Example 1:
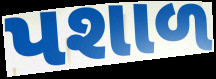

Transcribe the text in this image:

પશાળ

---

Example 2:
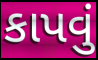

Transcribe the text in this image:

કાપવું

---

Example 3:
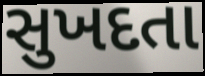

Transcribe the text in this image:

સુખદતા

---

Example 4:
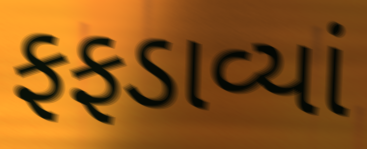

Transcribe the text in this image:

ફફડાવ્યાં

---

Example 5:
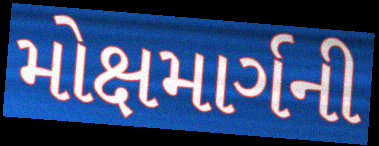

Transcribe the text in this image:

મોક્ષમાર્ગની